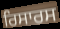
ਰਿਸਾਰਸ